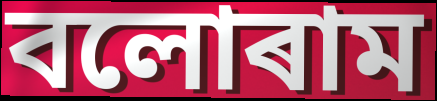
বলোৰাম